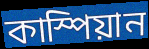
কাস্পিয়ান